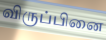
விருப்பினை